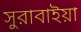
সুরাবাইয়া